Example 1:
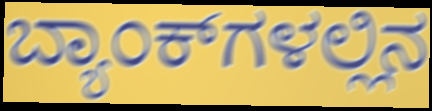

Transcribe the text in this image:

ಬ್ಯಾಂಕ್‌ಗಳಲ್ಲಿನ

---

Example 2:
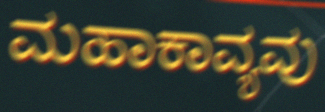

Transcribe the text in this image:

ಮಹಾಕಾವ್ಯವು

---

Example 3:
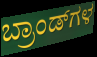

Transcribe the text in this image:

ಬ್ರಾಂಡ್‌ಗಳ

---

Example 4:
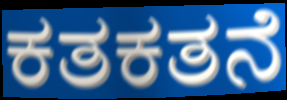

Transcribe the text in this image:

ಕತಕತನೆ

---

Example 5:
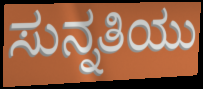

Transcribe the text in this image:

ಸುನ್ನತಿಯು